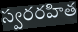
స్వరరహిత